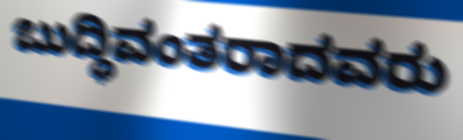
ಬುದ್ಧಿವಂತರಾದವರು